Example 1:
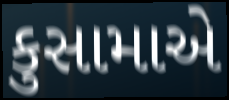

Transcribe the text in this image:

કુસામાએ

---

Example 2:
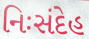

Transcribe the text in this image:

નિઃસંદેહ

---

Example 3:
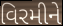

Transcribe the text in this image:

વિરમીને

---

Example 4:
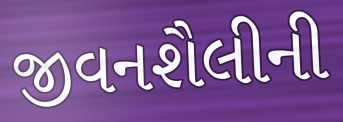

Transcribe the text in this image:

જીવનશૈલીની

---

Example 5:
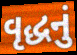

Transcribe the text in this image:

વૃદ્ધનું